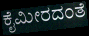
ಕೈಮೀರದಂತೆ